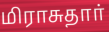
மிராசுதார்